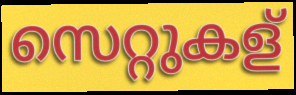
സെറ്റുകള്